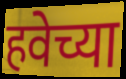
हवेच्या